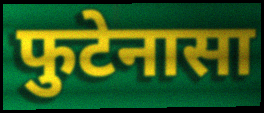
फुटेनासा